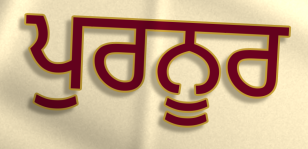
ਪੁਰਨੂਰ